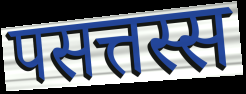
पसत्तस्स